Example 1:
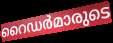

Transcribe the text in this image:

റൈഡർമാരുടെ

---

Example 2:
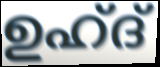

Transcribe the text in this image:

ഉഹ്ദ്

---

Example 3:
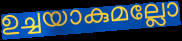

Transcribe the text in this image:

ഉച്ചയാകുമല്ലോ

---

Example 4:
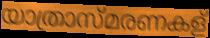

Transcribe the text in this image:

യാത്രാസ്മരണകള്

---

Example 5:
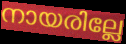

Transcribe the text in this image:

നായരില്ലേ